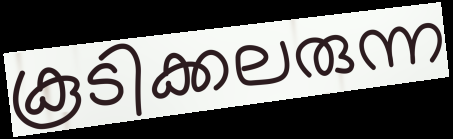
കൂടിക്കലരുന്ന